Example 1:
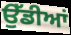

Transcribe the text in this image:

ਉੱਡੀਆਂ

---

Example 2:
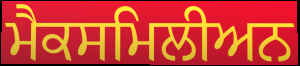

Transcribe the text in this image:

ਮੈਕਸਮਿਲੀਅਨ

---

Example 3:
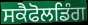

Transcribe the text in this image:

ਸਕੈਫੋਲਡਿੰਗ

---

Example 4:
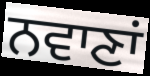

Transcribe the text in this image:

ਨਵਾਣਾਂ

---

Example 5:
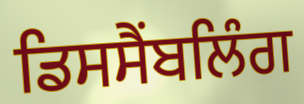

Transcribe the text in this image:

ਡਿਸਸੈਂਬਲਿੰਗ